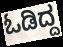
ಓಡಿದ್ದ